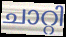
ചാറ്റി